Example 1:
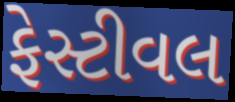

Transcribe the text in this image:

ફેસ્ટીવલ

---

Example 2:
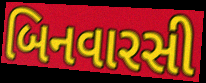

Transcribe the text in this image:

બિનવારસી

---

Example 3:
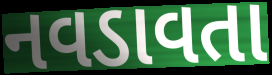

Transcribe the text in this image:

નવડાવતા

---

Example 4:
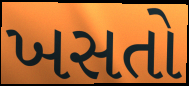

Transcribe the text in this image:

ખસતો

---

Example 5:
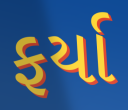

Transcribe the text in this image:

ફર્યા